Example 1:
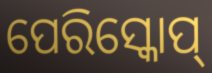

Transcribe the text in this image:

ପେରିସ୍କୋପ୍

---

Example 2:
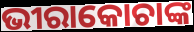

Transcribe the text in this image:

ଭୀରାକୋଚାଙ୍କ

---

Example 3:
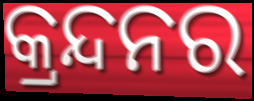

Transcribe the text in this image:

କ୍ରନ୍ଦନର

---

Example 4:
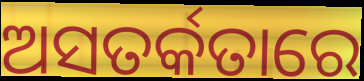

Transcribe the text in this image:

ଅସତର୍କତାରେ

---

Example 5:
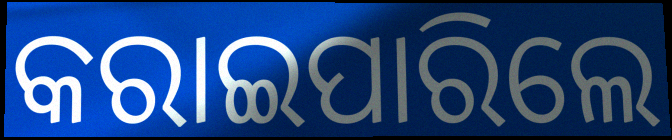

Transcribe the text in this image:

କରାଇପାରିଲେ